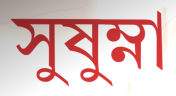
সুষুম্না